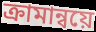
ক্রামান্বয়ে